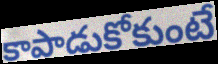
కాపాడుకోకుంటే